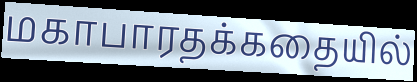
மகாபாரதக்கதையில்